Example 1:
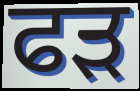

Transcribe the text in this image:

ਫੜ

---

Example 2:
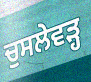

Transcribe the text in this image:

ਚੁਸਲੇਵੜ੍ਹ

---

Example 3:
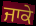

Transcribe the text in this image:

ਜਾਕੇ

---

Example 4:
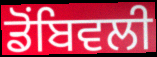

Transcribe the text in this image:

ਡੋਂਬਿਵਲੀ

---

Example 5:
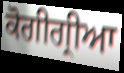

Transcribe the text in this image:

ਕੋਗੀਗ੍ਰੀਆ